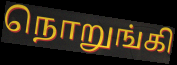
நொறுங்கி